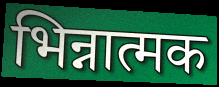
भिन्नात्मक